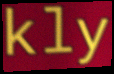
kly